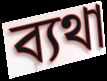
ব্যথা